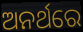
ଅନର୍ଥରେ